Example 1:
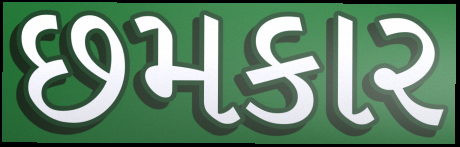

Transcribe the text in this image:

છમકાર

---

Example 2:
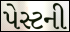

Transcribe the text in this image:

પેસ્ટની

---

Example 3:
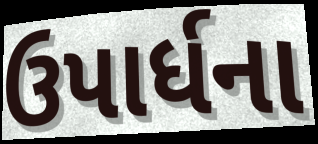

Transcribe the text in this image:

ઉપાર્ધના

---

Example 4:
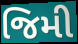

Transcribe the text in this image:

જિમી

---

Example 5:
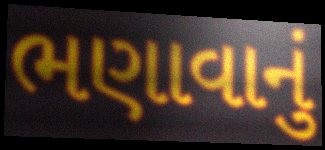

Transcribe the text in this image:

ભણાવાનું